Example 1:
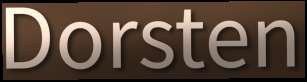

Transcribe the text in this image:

Dorsten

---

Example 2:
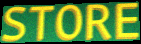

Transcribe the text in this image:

STORE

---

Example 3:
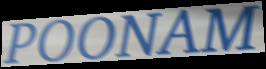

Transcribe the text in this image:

POONAM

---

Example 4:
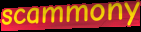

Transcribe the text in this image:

scammony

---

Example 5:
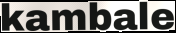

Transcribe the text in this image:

kambale